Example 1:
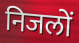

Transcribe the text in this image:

निजलों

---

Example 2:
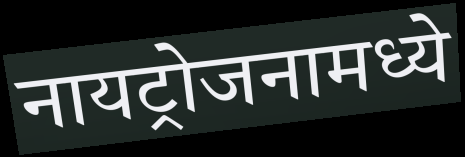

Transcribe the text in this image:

नायट्रोजनामध्ये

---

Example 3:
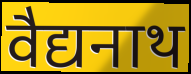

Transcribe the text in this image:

वैद्यनाथ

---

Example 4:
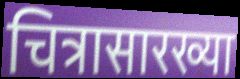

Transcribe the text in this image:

चित्रासारख्या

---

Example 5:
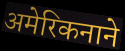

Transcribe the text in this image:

अमेरिकनाने